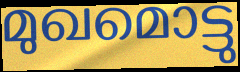
മുഖമൊട്ടു